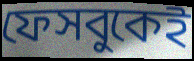
ফেসবুকেই